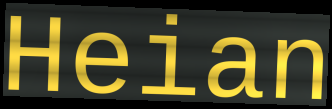
Heian